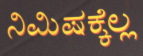
ನಿಮಿಷಕ್ಕೆಲ್ಲ